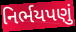
નિર્ભયપણું